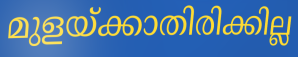
മുളയ്ക്കാതിരിക്കില്ല